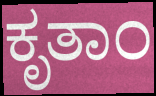
ಕೃತಾಂ